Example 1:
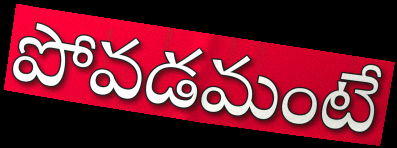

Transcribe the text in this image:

పోవడమంటే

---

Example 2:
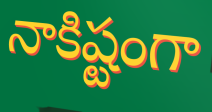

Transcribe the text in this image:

నాకిష్టంగా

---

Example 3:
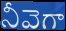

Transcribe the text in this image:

నీవెగా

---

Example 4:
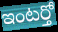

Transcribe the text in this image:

ఇంటర్తో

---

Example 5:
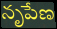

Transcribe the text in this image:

నృపేణ